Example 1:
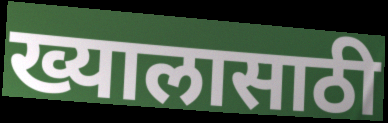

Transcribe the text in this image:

ख्यालासाठी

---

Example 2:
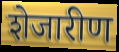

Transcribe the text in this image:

शेजारीण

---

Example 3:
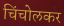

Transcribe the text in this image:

चिंचोलकर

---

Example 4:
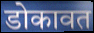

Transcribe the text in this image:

डोकावत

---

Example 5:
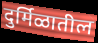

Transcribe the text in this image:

दुर्मिळातील